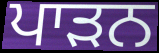
ਪਾੜਨ